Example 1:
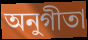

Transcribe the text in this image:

অনুগীতা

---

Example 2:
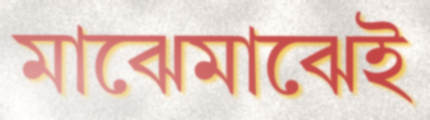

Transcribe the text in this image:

মাঝেমাঝেই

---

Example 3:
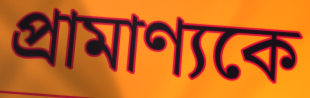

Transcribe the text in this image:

প্রামাণ্যকে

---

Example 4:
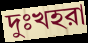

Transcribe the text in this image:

দুঃখহরা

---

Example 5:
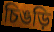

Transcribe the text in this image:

চিঙড়ি